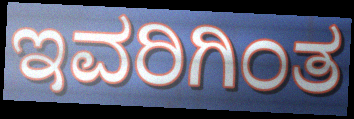
ಇವರಿಗಿಂತ